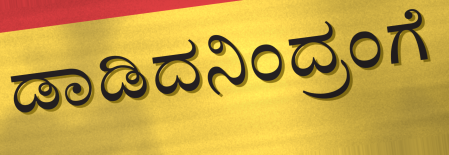
ಡಾಡಿದನಿಂದ್ರಂಗೆ